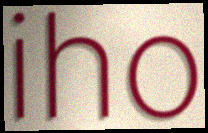
iho